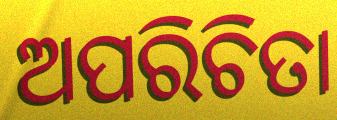
ଅପରିଚିତା